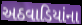
અઠવાડિયાંના